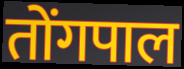
तोंगपाल